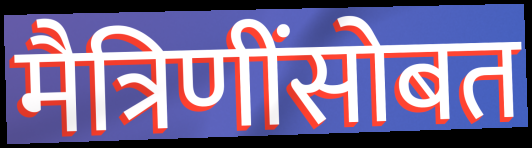
मैत्रिणींसोबत